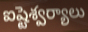
ఐష్టెశ్వర్యాలు